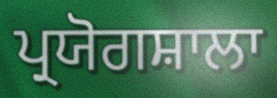
ਪ੍ਰਯੋਗਸ਼ਾਲਾ